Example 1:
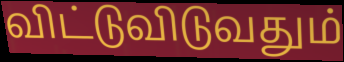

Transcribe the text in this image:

விட்டுவிடுவதும்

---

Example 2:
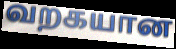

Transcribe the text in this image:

வறகயான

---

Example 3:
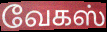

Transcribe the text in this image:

வேகஸ்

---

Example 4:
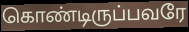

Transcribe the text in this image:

கொண்டிருப்பவரே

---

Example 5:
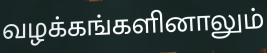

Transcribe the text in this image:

வழக்கங்களினாலும்